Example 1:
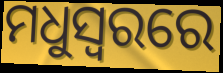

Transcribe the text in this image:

ମଧୁସ୍ୱରରେ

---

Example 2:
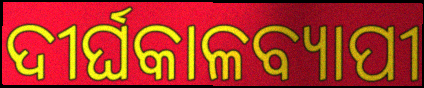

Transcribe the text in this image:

ଦୀର୍ଘକାଳବ୍ୟାପୀ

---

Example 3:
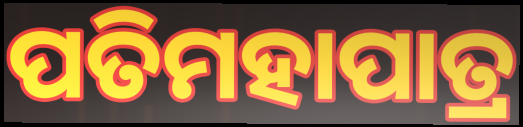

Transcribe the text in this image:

ପତିମହାପାତ୍ର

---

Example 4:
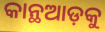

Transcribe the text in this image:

କାନ୍ଥଆଡ଼କୁ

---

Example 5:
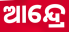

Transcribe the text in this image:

ଆନ୍ଦ୍ରେ